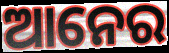
ଆନେର